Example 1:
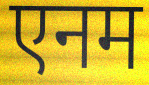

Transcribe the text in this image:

एनम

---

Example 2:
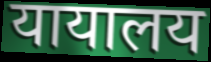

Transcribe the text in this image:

यायालय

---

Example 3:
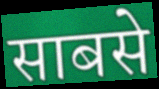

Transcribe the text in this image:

साबसे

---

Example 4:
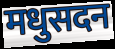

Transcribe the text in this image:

मधुसदन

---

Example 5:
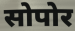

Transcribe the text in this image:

सोपोर